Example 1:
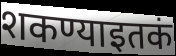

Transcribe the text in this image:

शकण्याइतकं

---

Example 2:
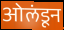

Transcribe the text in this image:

ओलंडून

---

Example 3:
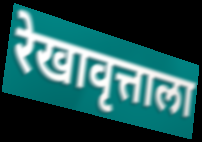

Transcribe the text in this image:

रेखावृत्ताला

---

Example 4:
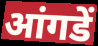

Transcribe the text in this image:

आंगडें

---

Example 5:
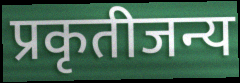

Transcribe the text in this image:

प्रकृतीजन्य